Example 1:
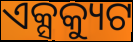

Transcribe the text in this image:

ଏକ୍ସକ୍ୟୁଟ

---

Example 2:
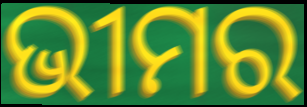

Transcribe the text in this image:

ଭୀମର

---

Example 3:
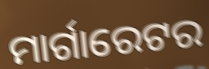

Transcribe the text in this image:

ମାର୍ଗାରେଟର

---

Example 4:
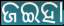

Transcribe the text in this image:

ଜଇହା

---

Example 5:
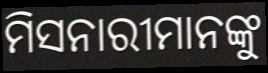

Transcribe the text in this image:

ମିସନାରୀମାନଙ୍କୁ